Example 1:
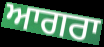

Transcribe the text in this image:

ਆਗਰਾ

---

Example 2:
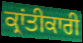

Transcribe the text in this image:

ਕ੍ਰਾਂਤੀਕਾਰੀ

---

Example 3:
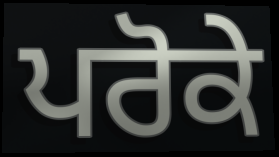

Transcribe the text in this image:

ਪਰੋਕੇ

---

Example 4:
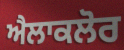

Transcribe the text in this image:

ਐਲਾਕਲੋਰ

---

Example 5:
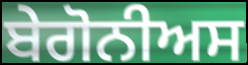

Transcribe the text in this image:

ਬੇਗੋਨੀਅਸ